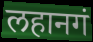
लहानगं